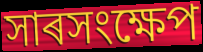
সাৰসংক্ষেপ